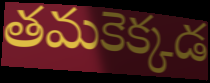
తమకెక్కడ